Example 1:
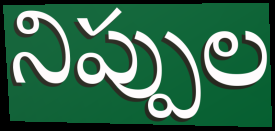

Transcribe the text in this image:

నిప్పుల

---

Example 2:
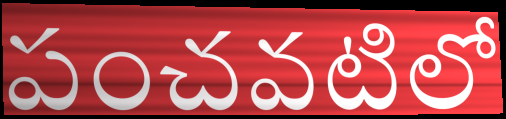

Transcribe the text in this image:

పంచవటిలో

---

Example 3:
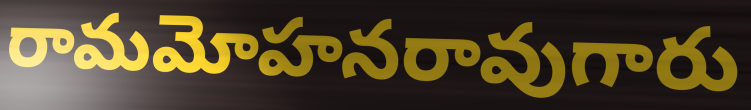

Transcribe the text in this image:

రామమోహనరావుగారు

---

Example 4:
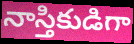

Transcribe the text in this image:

నాస్తికుడిగా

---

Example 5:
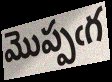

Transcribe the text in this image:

మొప్పఁగ